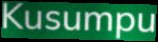
Kusumpu